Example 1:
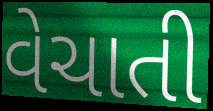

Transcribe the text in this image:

વેચાતી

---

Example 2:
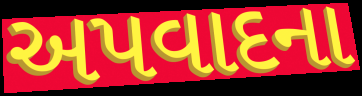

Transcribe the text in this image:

અપવાદના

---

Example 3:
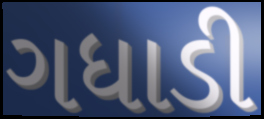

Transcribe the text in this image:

ગધાડી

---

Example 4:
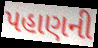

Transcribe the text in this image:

પહાણની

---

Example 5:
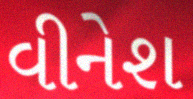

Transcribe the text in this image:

વીનેશ